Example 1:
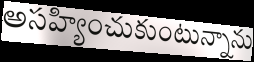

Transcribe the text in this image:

అసహ్యించుకుంటున్నాను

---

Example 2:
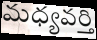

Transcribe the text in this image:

మధ్యవర్తి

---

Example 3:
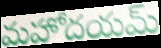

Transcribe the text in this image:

మహోదయమ్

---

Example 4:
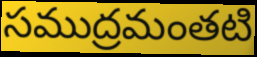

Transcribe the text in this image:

సముద్రమంతటి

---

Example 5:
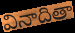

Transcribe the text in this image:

వినాదితా